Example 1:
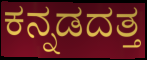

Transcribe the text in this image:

ಕನ್ನಡದತ್ತ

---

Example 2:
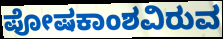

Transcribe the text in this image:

ಪೋಷಕಾಂಶವಿರುವ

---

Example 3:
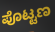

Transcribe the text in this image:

ಪೊಟ್ಟಣ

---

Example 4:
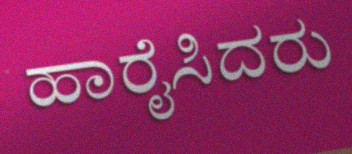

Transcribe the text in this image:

ಹಾರೈಸಿದರು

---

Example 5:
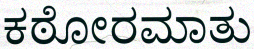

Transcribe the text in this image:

ಕಠೋರಮಾತು